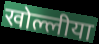
खोल्लीया